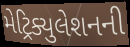
મેટ્રિક્યુલેશનની